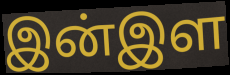
இன்இள